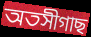
অতসীগাছ